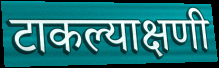
टाकल्याक्षणी